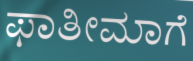
ಫಾತೀಮಾಗೆ